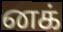
னக்